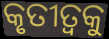
କୃତୀତ୍ଵକୁ